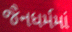
જૈનધર્મમાં